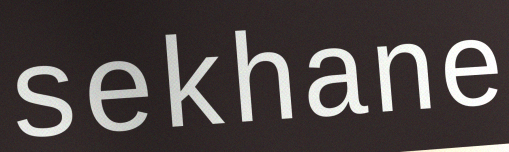
sekhane